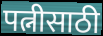
पत्नीसाठी